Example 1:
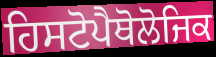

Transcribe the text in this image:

ਹਿਸਟੋਪੈਥੋਲੋਜਿਕ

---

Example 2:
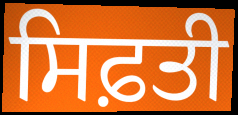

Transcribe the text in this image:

ਸਿਫ਼ਤੀ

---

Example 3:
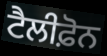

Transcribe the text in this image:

ਟੈਲੀਫ਼ੋਨ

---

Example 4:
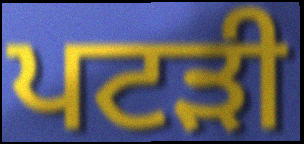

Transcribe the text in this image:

ਪਟੜੀ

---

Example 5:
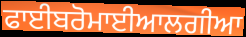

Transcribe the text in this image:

ਫਾਈਬਰੋਮਾਈਆਲਗੀਆ